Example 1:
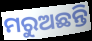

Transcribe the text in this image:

ମରୁଅଛନ୍ତି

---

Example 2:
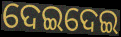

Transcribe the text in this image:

ଦେଇଦେଇ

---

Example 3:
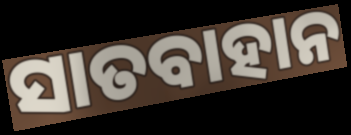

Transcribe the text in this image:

ସାତବାହାନ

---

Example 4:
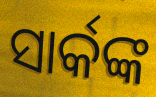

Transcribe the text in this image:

ସାର୍କଙ୍କ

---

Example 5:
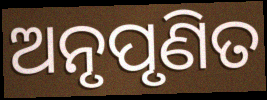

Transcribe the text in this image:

ଅନୃପୃଣିତ